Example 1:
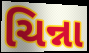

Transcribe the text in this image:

ચિન્ના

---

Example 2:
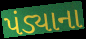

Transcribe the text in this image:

પંડ્યાના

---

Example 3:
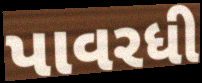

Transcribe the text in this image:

પાવરધી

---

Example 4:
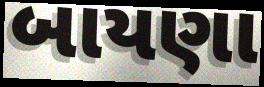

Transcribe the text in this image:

બાયણા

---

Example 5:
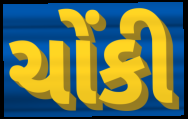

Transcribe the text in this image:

ચોંકી